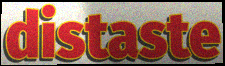
distaste